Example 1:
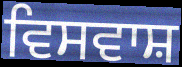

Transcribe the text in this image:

ਵਿਸਵਾਸ਼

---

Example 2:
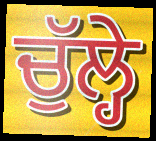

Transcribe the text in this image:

ਚੁੱਲ੍ਹੇ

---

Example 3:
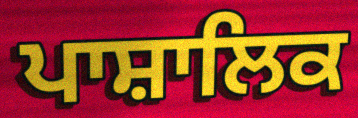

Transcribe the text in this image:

ਪਾਸ਼ਾਲਿਕ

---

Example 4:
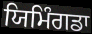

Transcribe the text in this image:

ਯਿਮਿੰਗਡਾ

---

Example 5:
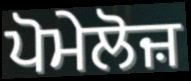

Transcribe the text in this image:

ਪੋਮੇਲੋਜ਼